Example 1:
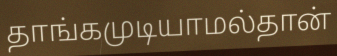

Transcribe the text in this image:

தாங்கமுடியாமல்தான்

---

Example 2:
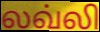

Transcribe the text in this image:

லவ்லி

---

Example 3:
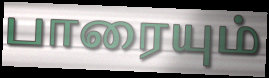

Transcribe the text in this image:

பாரையும்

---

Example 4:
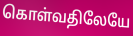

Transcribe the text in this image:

கொள்வதிலேயே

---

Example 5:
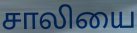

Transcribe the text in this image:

சாலியை